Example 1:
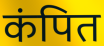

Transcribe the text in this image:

कंपित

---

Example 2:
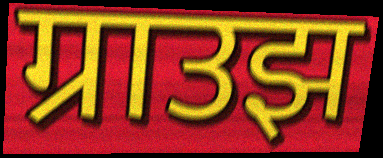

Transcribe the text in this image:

ग्राउझ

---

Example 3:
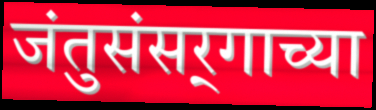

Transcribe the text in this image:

जंतुसंसर्गाच्या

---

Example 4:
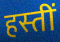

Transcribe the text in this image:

हस्तीं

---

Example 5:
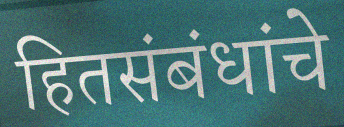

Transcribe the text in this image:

हितसंबंधांचे